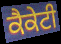
ਕੈਕੇਟੀ